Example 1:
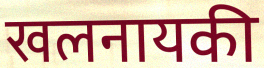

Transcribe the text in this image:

खलनायकी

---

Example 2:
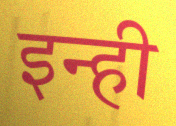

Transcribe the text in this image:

इन्ही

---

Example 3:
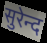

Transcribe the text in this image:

सुरेन्द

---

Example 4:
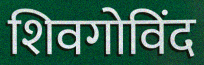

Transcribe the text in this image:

शिवगोविंद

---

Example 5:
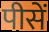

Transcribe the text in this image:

पीसें